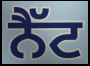
ਨੈੱਟ